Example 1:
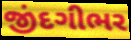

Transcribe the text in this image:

જીંદગીભર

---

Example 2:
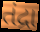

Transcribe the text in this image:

તંદ્રા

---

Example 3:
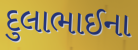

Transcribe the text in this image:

દુલાભાઈના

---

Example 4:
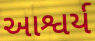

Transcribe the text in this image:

આશ્વર્ય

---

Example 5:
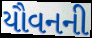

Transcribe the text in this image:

યૌવનની